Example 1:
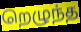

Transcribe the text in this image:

றெழுந்த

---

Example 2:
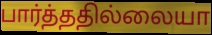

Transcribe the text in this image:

பார்த்ததில்லையா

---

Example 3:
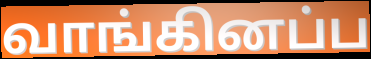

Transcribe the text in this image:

வாங்கினப்ப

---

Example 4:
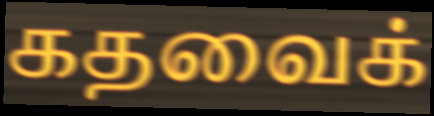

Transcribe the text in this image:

கதவைக்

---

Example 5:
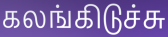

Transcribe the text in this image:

கலங்கிடுச்சு